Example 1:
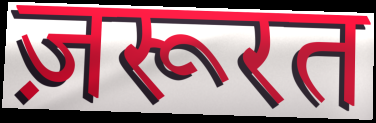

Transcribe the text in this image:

ज़रूरत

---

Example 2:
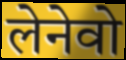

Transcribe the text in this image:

लेनेवो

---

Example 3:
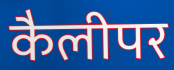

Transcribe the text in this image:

कैलीपर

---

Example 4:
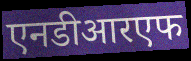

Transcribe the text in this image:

एनडीआरएफ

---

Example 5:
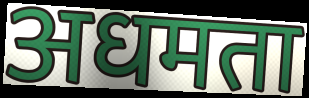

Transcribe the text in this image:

अधमता